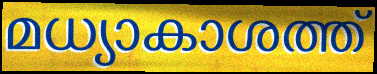
മധ്യാകാശത്ത്